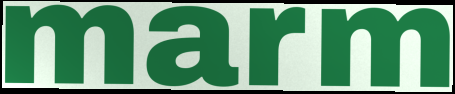
marm